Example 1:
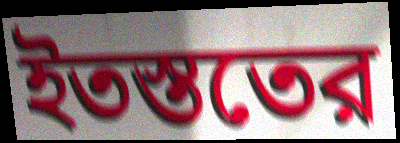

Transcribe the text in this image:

ইতস্ততের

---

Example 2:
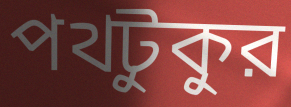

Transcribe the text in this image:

পথটুকুর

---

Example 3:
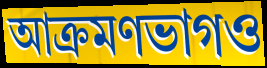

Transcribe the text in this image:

আক্রমণভাগও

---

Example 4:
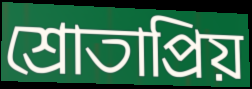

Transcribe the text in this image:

শ্রোতাপ্রিয়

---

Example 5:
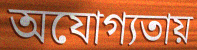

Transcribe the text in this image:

অযোগ্যতায়